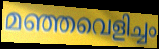
മഞ്ഞവെളിച്ചം